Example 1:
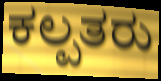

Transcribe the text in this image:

ಕಲ್ಪತರು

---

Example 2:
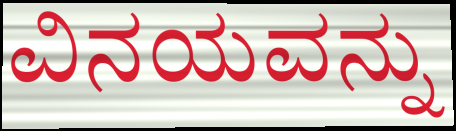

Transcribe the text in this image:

ವಿನಯವನ್ನು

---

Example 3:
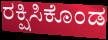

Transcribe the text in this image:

ರಕ್ಷಿಸಿಕೊಂಡ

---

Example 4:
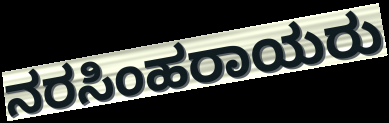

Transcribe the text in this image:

ನರಸಿಂಹರಾಯರು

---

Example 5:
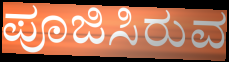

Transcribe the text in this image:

ಪೂಜಿಸಿರುವ